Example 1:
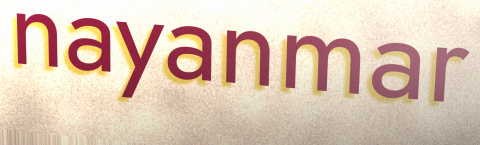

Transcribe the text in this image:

nayanmar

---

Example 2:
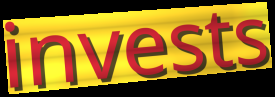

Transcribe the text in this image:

invests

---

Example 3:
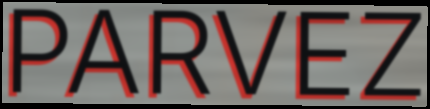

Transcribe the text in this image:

PARVEZ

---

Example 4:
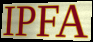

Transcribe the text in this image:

IPFA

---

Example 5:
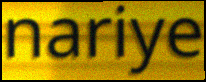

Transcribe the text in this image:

nariye